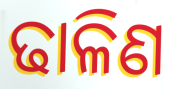
ଢାଳିଣ